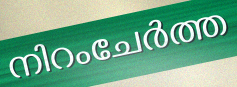
നിറംചേർത്ത